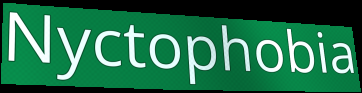
Nyctophobia